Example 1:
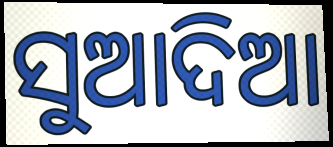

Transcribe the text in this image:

ସୁଆଦିଆ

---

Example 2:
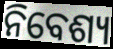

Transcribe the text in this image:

ନିବେଶ୍ୟ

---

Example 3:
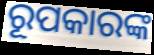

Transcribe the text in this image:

ରୂପକାରଙ୍କ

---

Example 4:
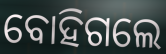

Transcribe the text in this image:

ବୋହିଗଲେ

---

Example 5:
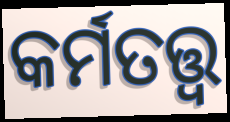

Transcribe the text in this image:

କର୍ମତତ୍ତ୍ୱ